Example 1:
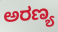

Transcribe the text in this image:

ಅರಣ್ಯ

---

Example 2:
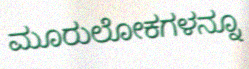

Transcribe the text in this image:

ಮೂರುಲೋಕಗಳನ್ನೂ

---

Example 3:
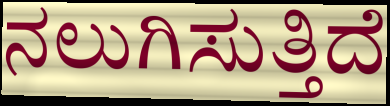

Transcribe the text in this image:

ನಲುಗಿಸುತ್ತಿದೆ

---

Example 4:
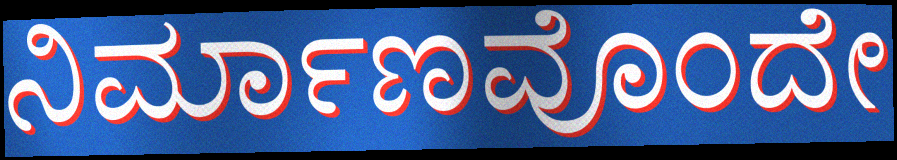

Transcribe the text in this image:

ನಿರ್ಮಾಣವೊಂದೇ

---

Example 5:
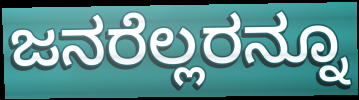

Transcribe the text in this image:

ಜನರೆಲ್ಲರನ್ನೂ